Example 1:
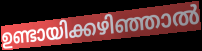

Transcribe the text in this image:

ഉണ്ടായിക്കഴിഞ്ഞാൽ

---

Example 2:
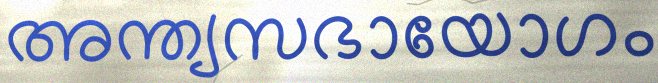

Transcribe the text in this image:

അന്ത്യസഭായോഗം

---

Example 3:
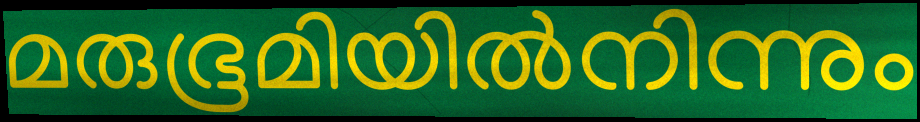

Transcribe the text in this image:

മരുഭൂമിയിൽനിന്നും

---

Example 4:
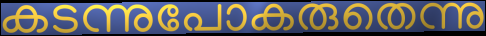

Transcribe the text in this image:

കടന്നുപോകരുതെന്നു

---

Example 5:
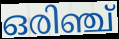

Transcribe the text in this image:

ഒരിഞ്ച്